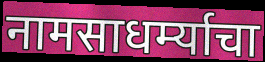
नामसाधर्म्याचा